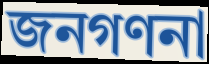
জনগণনা